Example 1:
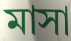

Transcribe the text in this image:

মাসা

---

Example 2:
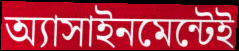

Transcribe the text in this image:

অ্যাসাইনমেন্টেই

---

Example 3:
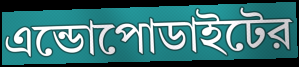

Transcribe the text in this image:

এন্ডোপোডাইটের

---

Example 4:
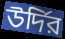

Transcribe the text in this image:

উর্দির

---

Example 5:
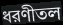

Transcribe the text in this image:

ধরণীতল